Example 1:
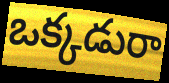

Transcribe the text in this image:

ఒక్కడురా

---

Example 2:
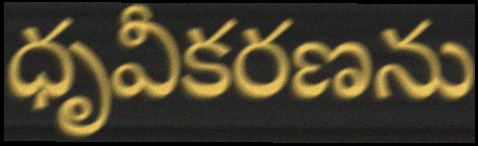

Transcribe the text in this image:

ధృవీకరణను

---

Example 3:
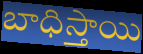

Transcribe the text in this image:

బాధిస్తాయి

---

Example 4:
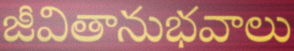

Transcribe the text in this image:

జీవితానుభవాలు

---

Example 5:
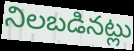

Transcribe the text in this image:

నిలబడినట్లు